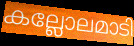
കല്ലോലമാടി